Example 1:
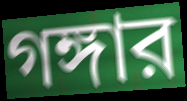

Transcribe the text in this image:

গঙ্গার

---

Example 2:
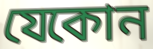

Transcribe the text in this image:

যেকোন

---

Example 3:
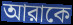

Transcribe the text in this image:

আরাকে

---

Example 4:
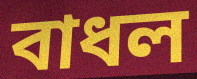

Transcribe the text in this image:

বাধল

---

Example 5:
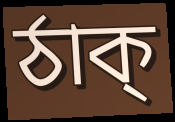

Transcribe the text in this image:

ঠাক্